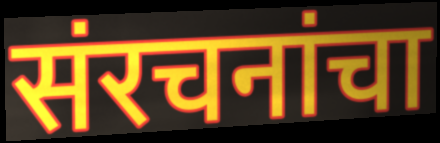
संरचनांचा